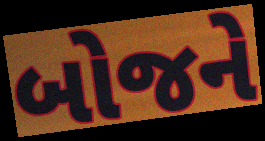
બોજને